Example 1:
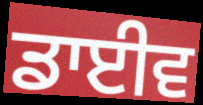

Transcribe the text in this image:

ਡਾਈਵ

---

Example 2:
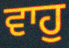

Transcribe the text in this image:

ਵਾਹੁ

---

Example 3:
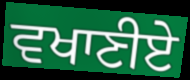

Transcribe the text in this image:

ਵਖਾਣੀਏ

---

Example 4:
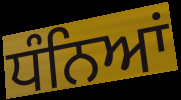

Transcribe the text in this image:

ਧੰਨਿਆਂ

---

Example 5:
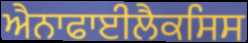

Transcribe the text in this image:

ਐਨਾਫਾਈਲੈਕਸਿਸ